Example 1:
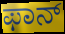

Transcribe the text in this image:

ಫಾನ್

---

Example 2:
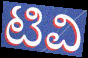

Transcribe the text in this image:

ಟಿವಿ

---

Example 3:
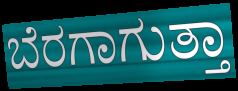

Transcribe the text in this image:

ಬೆರಗಾಗುತ್ತಾ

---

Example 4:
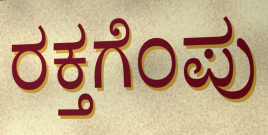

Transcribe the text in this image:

ರಕ್ತಗೆಂಪು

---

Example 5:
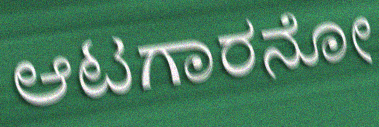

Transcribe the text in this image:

ಆಟಗಾರನೋ